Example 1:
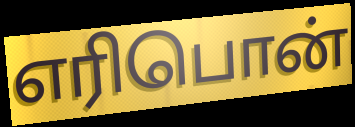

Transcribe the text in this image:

எரிபொன்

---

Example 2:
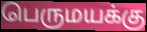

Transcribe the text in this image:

பெருமயக்கு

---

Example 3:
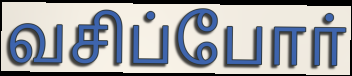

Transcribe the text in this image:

வசிப்போர்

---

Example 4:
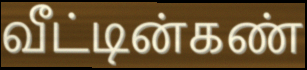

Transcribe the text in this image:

வீட்டின்கண்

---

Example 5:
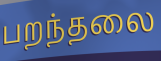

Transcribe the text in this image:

பறந்தலை